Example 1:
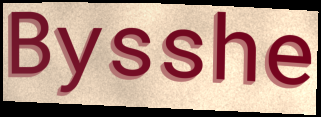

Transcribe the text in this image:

Bysshe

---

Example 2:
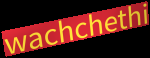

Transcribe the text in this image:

wachchethi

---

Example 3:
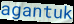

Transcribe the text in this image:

agantuk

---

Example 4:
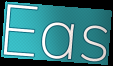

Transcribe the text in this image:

Eas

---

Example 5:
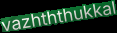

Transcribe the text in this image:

vazhththukkal